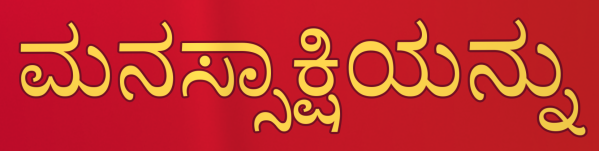
ಮನಸ್ಸಾಕ್ಷಿಯನ್ನು